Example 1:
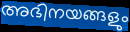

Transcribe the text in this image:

അഭിനയങ്ങളും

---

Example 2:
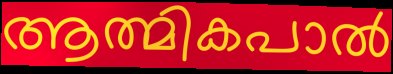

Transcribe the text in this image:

ആത്മികപാൽ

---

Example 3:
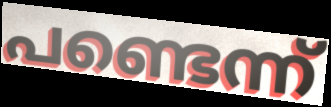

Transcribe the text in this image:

പണ്ടെന്ന്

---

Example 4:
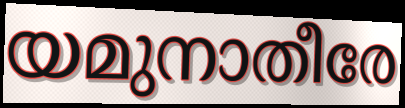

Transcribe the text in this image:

യമുനാതീരേ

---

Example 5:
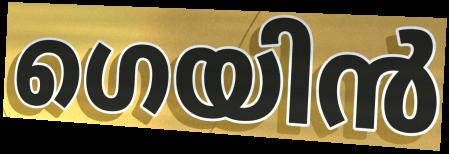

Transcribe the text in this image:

ഗെയിൻ